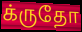
க்ருதோ